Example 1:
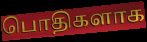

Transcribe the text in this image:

பொதிகளாக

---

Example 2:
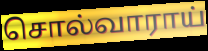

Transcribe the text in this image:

சொல்வாராய்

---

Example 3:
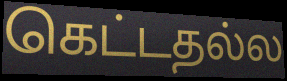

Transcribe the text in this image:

கெட்டதல்ல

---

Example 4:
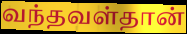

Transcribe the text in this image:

வந்தவள்தான்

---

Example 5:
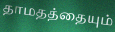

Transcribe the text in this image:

தாமதத்தையும்